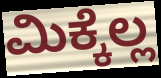
ಮಿಕ್ಕೆಲ್ಲ